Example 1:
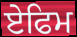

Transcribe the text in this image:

ਏਫਿਮ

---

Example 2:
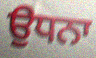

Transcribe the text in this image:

ਉਧਨਾ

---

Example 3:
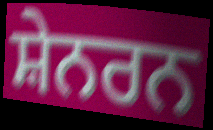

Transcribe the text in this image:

ਸ਼ੇਨਰਨ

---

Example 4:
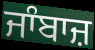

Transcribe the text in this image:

ਜਾੰਬਾਜ਼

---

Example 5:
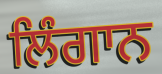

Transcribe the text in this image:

ਲਿੰਗਾਨ